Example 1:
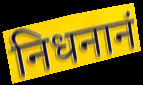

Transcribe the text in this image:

निधनानं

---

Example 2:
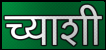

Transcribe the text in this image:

च्याशी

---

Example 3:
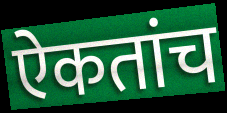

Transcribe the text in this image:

ऐकतांच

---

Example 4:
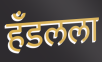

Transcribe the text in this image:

हँडलला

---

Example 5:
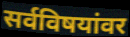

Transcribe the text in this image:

सर्वविषयांवर